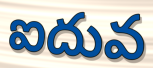
ఐదువ